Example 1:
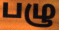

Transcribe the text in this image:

பழு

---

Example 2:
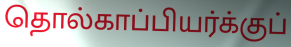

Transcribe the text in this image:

தொல்காப்பியர்க்குப்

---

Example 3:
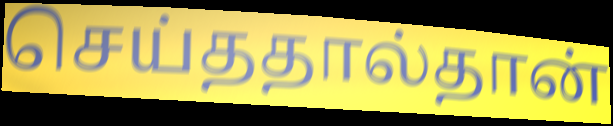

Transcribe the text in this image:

செய்ததால்தான்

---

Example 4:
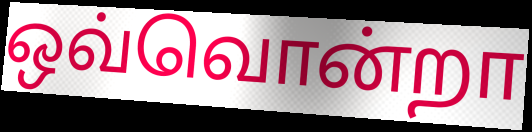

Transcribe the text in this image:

ஒவ்வொன்றா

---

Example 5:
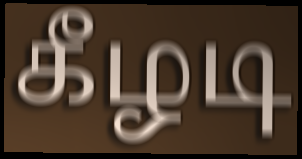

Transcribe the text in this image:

கீழடி